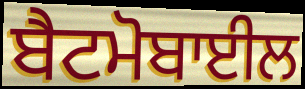
ਬੈਟਮੋਬਾਈਲ